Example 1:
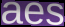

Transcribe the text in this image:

aes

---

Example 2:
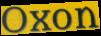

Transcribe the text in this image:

Oxon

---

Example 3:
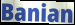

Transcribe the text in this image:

Banian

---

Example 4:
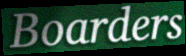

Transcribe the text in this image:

Boarders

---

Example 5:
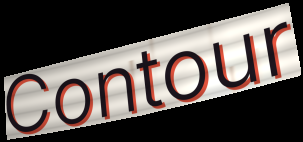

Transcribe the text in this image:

Contour